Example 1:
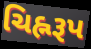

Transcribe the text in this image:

ચિહ્નરૂપ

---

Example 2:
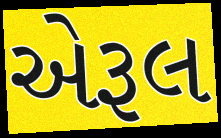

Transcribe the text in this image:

એરૂલ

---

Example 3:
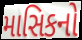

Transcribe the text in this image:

માસિકનો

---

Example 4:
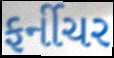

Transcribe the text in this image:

ફર્નીચર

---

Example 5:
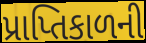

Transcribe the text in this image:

પ્રાપ્તિકાળની